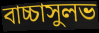
বাচ্চাসুলভ